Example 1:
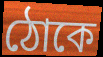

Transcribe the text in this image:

ঠোকে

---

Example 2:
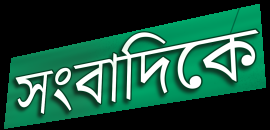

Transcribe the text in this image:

সংবাদিকে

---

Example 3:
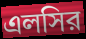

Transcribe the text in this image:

এলসির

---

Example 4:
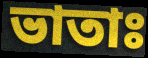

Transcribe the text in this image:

ভাতাঃ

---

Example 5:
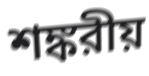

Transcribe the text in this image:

শঙ্করীয়